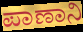
ಪಾಣಾನಿ